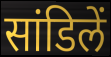
सांडिलें